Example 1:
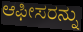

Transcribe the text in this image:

ಆಫೀಸರನ್ನು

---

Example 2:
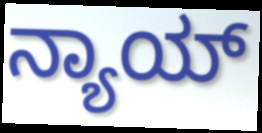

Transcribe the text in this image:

ನ್ಯಾಯ್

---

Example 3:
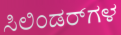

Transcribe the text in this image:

ಸಿಲಿಂಡರ್‌ಗಳ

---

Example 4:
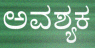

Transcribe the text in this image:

ಅವಶ್ಯಕ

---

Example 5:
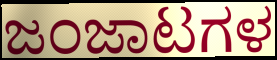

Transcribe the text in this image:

ಜಂಜಾಟಗಳ